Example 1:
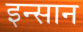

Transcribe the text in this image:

इन्सान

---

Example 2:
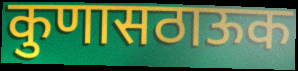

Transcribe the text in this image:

कुणासठाऊक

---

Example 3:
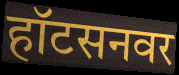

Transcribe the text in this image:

हॉटसनवर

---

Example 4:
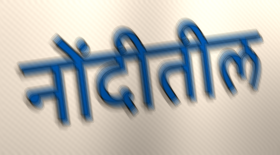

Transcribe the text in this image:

नोंदीतील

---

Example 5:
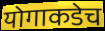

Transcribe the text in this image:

योगाकडेच